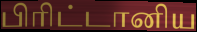
பிரிட்டானிய